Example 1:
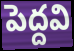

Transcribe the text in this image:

పెద్దవి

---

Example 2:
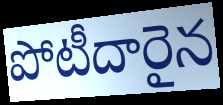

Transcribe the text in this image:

పోటీదారైన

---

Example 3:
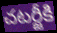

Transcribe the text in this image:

చటర్జీకి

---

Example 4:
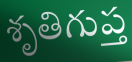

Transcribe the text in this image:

శృతిగుప్త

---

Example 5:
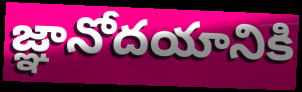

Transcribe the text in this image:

జ్ఞానోదయానికి